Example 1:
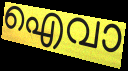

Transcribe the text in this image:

ഐവാ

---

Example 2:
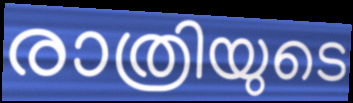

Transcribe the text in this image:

രാത്രിയുടെ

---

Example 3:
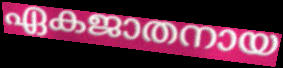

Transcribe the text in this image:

ഏകജാതനായ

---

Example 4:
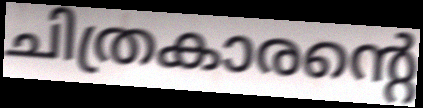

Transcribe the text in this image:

ചിത്രകാരന്റെ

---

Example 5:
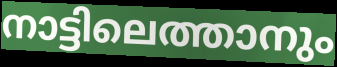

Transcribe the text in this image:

നാട്ടിലെത്താനും